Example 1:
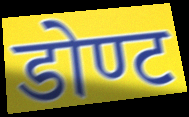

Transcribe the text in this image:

डोण्ट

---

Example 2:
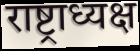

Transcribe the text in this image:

राष्ट्राध्यक्ष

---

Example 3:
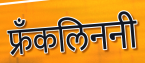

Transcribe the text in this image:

फ्रँकलिननी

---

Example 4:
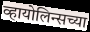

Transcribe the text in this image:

व्हायोलिन्सच्या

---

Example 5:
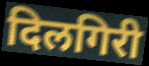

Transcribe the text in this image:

दिलगिरी